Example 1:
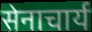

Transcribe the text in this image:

सेनाचार्य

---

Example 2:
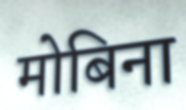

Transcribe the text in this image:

मोबिना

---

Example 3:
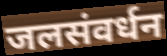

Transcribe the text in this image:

जलसंवर्धन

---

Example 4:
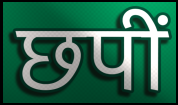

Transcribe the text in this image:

छपीं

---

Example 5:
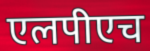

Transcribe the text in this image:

एलपीएच